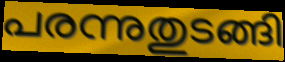
പരന്നുതുടങ്ങി